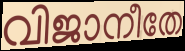
വിജാനീതേ